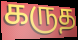
கருத